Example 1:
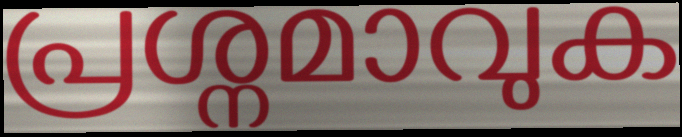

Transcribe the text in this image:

പ്രശ്നമാവുക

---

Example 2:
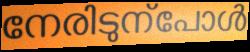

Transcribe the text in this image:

നേരിടുന്പോൾ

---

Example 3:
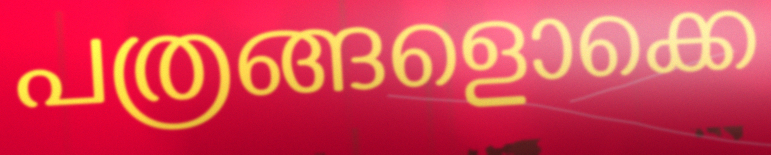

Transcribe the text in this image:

പത്രങ്ങളൊക്കെ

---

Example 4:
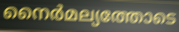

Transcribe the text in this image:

നൈർമല്യത്തോടെ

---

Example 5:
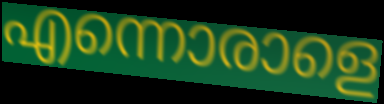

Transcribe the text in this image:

എന്നൊരാളെ